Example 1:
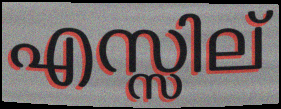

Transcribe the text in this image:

എസ്സില്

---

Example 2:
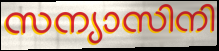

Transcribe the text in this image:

സന്യാസിനി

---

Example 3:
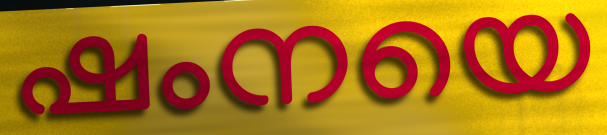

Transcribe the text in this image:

ഷംനയെ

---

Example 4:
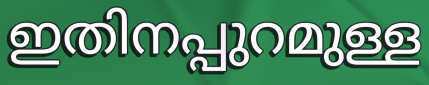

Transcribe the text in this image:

ഇതിനപ്പുറമുള്ള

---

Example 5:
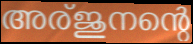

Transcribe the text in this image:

അര്ജുനന്റെ